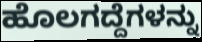
ಹೊಲಗದ್ದೆಗಳನ್ನು